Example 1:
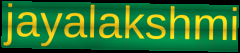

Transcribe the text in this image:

jayalakshmi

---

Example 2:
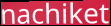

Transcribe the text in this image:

nachiket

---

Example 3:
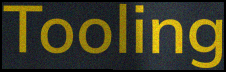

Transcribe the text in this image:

Tooling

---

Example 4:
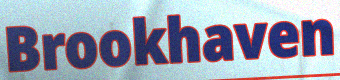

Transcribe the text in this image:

Brookhaven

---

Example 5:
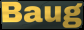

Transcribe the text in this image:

Baug